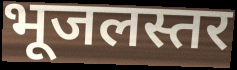
भूजलस्तर